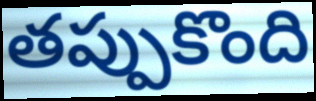
తప్పుకొంది